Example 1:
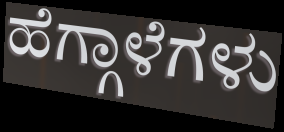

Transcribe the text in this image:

ಹೆಗ್ಗಾಳೆಗಳು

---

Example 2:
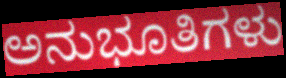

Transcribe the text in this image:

ಅನುಭೂತಿಗಳು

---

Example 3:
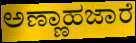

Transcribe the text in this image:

ಅಣ್ಣಾಹಜಾರೆ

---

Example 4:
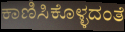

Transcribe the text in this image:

ಕಾಣಿಸಿಕೊಳ್ಳದಂತೆ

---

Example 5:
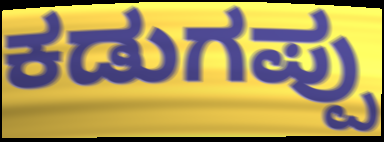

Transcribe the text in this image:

ಕಡುಗಪ್ಪು